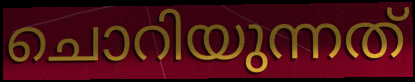
ചൊറിയുന്നത്